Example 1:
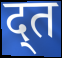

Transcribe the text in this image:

द्त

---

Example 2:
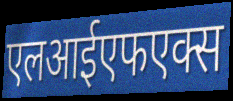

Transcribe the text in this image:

एलआईएफएक्स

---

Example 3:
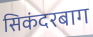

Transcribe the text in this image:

सिकंदरबाग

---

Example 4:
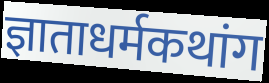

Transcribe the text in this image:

ज्ञाताधर्मकथांग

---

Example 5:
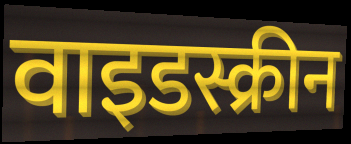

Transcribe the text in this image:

वाइडस्क्रीन